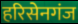
हरिसेनगंज